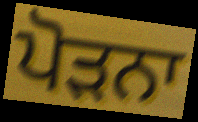
ਪੋੜਨਾ